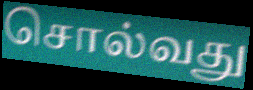
சொல்வது